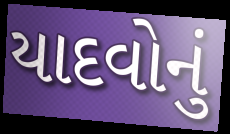
યાદવોનું